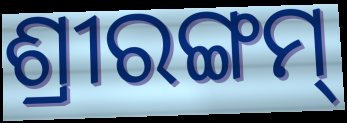
ଶ୍ରୀରଙ୍ଗମ୍